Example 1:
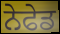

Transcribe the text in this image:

ਨੇਫੇਡ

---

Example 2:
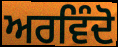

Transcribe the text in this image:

ਅਰਵਿੰਦੋ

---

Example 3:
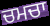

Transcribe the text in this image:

ਚਮਚਾ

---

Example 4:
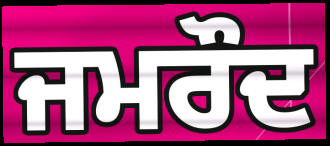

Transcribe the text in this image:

ਜਮਰੌਦ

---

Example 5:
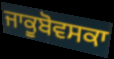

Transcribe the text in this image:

ਜਾਕੂਬੋਵਸਕਾ